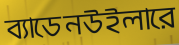
ব্যাডেনউইলারে